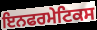
ਇਨਫਰਮੇਟਿਕਸ